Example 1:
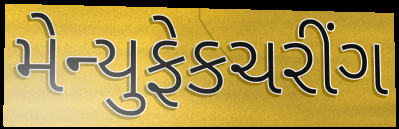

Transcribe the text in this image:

મેન્યુફેકચરીંગ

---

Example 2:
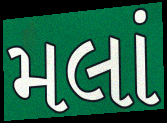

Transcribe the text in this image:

મલાં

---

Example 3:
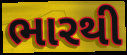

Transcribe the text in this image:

ભારથી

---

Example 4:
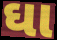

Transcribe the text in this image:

ઘા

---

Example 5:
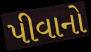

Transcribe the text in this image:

પીવાનો